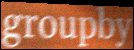
groupby